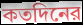
কতদিনের